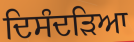
ਦਿਸੰਦੜਿਆ